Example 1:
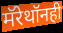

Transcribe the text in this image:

मॅरेथॉनही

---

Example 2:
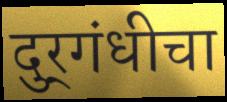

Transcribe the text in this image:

दुर्गंधीचा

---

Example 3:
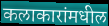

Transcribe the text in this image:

कलाकारांमधील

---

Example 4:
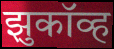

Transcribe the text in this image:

झुकॉव्ह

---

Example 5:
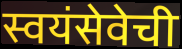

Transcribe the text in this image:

स्वयंसेवेची